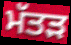
ਮੱਤੜ